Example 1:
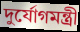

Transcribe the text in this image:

দুর্যোগমন্ত্রী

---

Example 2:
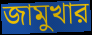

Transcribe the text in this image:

জামুখার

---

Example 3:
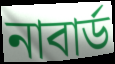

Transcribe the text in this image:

নাবার্ড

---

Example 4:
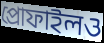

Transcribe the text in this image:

প্রোফাইলও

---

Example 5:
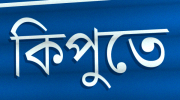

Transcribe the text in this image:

কিপুতে